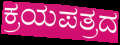
ಕ್ರಯಪತ್ರದ